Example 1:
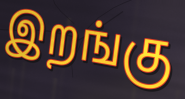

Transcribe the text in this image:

இறங்கு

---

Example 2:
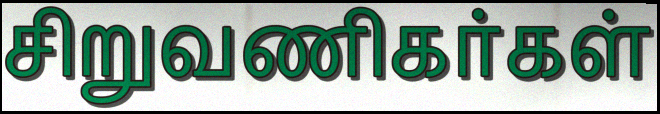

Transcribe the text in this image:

சிறுவணிகர்கள்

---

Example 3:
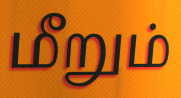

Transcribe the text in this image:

மீறும்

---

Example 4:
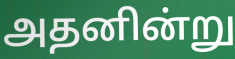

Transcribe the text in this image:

அதனின்று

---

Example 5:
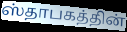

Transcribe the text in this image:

ஸ்தாபகத்தின்